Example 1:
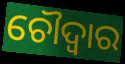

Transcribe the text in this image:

ଚୌଦ୍ବାର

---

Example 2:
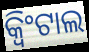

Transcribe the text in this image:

କ୍ୱିଂଟାଲ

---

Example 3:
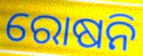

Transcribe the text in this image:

ରୋଷନି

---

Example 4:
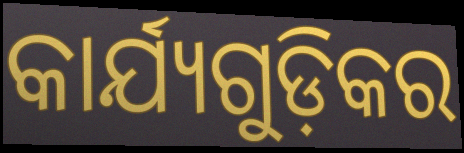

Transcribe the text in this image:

କାର୍ଯ୍ୟଗୁଡ଼ିକର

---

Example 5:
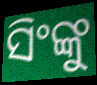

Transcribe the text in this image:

ସିଂଙ୍କୁ